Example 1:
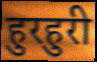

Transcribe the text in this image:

हुरहुरी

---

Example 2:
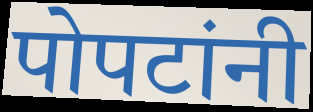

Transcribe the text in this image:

पोपटांनी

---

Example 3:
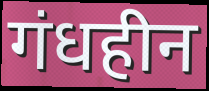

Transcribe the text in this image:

गंधहीन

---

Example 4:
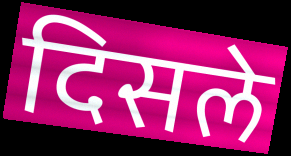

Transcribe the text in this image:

दिसले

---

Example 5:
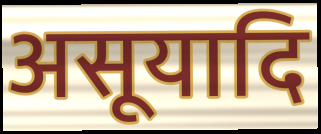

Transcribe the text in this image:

असूयादि